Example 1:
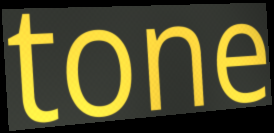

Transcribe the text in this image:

tone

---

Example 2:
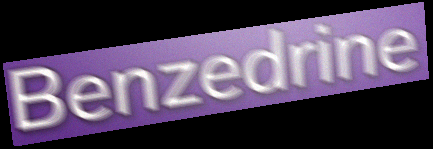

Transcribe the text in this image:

Benzedrine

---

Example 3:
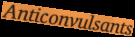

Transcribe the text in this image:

Anticonvulsants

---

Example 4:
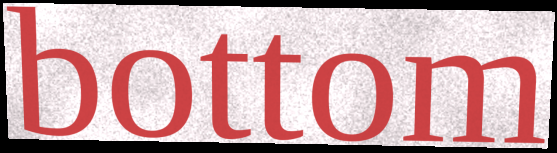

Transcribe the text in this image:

bottom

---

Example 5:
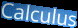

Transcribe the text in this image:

Calculus